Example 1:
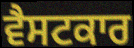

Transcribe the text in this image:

ਵੈਸਟਕਾਰ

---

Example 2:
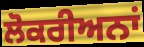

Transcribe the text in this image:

ਲੋਕਰੀਅਨਾਂ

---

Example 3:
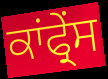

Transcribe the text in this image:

ਕਾਂਫ੍ਰੇਂਸ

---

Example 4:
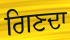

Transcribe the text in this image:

ਗਿਣਦਾ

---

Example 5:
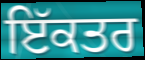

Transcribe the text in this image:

ਇੱਕਤਰ